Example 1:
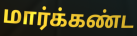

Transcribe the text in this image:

மார்க்கண்ட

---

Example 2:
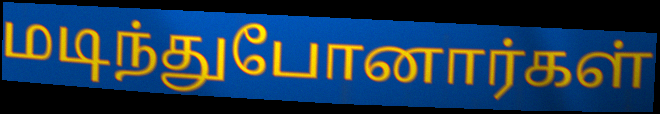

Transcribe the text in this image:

மடிந்துபோனார்கள்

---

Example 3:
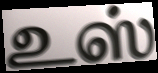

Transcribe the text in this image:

உஸ்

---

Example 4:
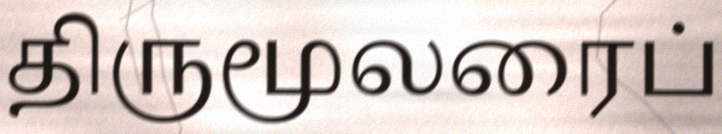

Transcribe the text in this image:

திருமூலரைப்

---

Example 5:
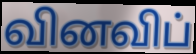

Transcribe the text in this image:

வினவிப்